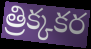
త్రిక్కకర